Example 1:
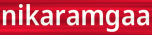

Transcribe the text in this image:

nikaramgaa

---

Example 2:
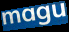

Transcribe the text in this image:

magu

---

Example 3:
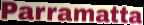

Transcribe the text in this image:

Parramatta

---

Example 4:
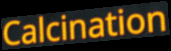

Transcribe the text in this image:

Calcination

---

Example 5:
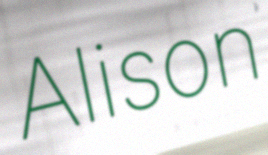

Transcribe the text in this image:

Alison